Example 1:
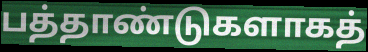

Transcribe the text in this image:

பத்தாண்டுகளாகத்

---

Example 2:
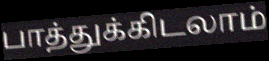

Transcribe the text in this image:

பாத்துக்கிடலாம்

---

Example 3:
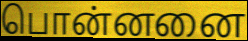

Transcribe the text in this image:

பொன்னனை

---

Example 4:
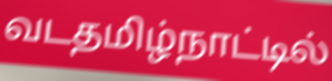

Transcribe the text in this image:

வடதமிழ்நாட்டில்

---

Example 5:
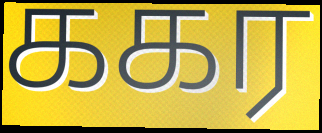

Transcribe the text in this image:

ககர